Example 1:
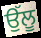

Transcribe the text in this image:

ਉੱਲੂ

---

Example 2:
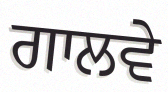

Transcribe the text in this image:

ਗਾਲਵੇ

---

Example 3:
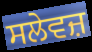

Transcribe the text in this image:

ਸਲੇਵਜ਼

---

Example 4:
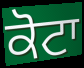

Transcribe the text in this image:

ਕੋਟਾ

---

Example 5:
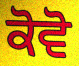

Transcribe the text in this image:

ਕੋਵੋ